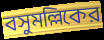
বসুমল্লিকের